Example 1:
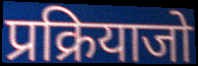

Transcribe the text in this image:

प्रक्रियाजो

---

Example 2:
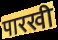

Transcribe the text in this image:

पारखी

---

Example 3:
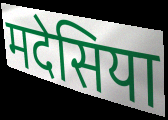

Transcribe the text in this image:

मदेसिया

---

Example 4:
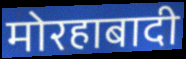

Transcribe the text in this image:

मोरहाबादी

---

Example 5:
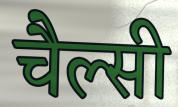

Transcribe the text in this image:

चैल्सी